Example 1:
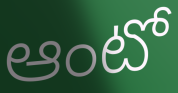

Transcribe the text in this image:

ఆంటో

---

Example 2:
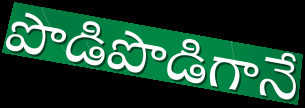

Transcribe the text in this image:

పొడిపొడిగానే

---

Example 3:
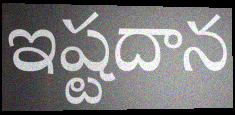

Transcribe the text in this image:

ఇష్టదాన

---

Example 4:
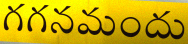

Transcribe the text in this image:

గగనమందు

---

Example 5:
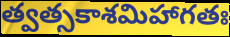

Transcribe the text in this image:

త్వత్సకాశమిహాగతః